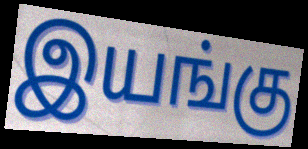
இயங்கு